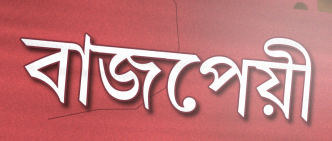
বাজপেয়ী